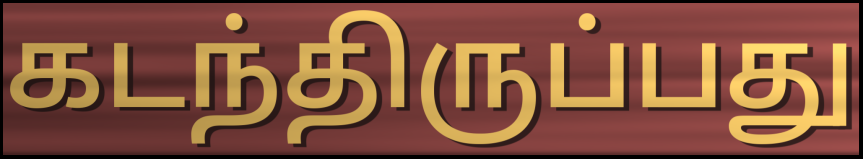
கடந்திருப்பது